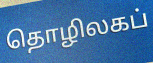
தொழிலகப்